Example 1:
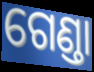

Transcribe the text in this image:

ଗେଣ୍ଡା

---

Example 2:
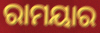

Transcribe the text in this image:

ରାମୟାର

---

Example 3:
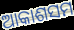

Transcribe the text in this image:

ଆକାଶସମ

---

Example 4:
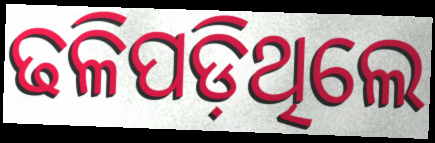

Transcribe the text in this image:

ଢଳିପଡ଼ିଥିଲେ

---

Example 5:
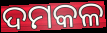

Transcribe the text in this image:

ଦମକଳ